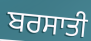
ਬਰਸਾਤੀ